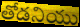
తోడనియు